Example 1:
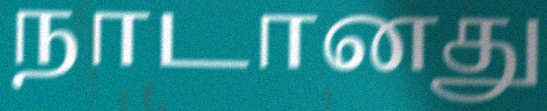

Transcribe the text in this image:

நாடானது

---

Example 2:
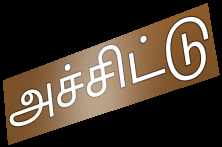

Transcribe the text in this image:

அச்சிட்டு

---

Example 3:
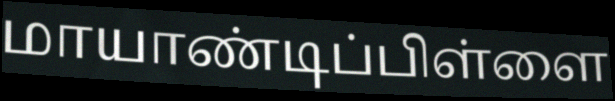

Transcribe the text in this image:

மாயாண்டிப்பிள்ளை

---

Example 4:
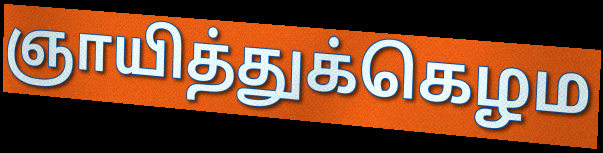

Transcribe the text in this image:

ஞாயித்துக்கெழம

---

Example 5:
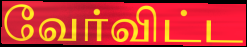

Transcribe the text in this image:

வேர்விட்ட